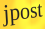
jpost